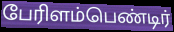
பேரிளம்பெண்டிர்